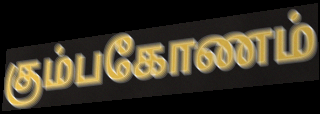
கும்பகோணம்